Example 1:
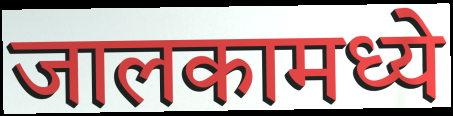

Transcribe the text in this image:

जालकामध्ये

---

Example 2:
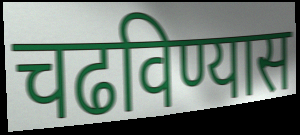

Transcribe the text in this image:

चढविण्यास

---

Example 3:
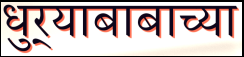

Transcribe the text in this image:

धुर्याबाबाच्या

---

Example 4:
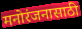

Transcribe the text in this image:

मनोरंजनासाठी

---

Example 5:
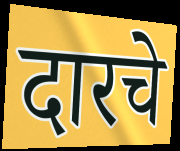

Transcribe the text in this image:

दारचे